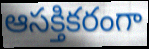
ఆసక్తికరంగా